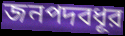
জনপদবধূর